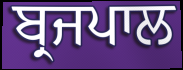
ਬ੍ਰਜਪਾਲ